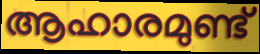
ആഹാരമുണ്ട്